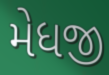
મેધજી